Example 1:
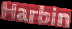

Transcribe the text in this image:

Harbin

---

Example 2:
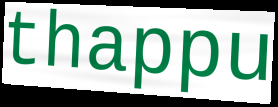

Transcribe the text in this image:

thappu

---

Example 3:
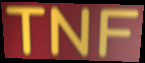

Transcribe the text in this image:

TNF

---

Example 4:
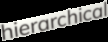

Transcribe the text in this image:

hierarchical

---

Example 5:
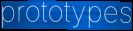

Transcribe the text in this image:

prototypes